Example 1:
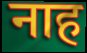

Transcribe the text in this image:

नाह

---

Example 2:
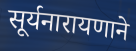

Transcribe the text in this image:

सूर्यनारायणाने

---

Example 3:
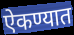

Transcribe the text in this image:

ऐकण्यात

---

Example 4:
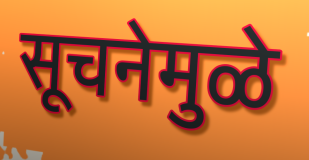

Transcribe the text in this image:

सूचनेमुळे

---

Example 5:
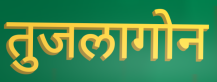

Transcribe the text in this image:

तुजलागोन